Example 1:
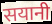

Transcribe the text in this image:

सयानी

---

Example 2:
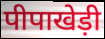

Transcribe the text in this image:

पीपाखेड़ी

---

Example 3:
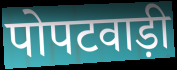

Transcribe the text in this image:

पोपटवाड़ी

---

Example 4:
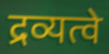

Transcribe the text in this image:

द्रव्यत्वे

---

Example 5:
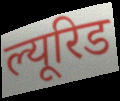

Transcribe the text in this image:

ल्यूरिड